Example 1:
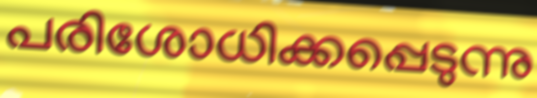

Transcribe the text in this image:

പരിശോധിക്കപ്പെടുന്നു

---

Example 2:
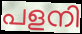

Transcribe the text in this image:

പളനി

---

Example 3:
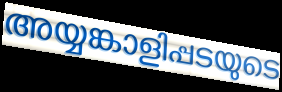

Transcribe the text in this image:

അയ്യങ്കാളിപ്പടയുടെ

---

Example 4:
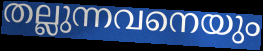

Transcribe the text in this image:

തല്ലുന്നവനെയും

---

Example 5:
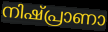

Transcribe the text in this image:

നിഷ്പ്രാണാ